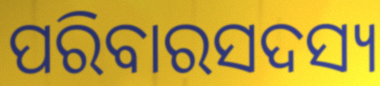
ପରିବାରସଦସ୍ୟ